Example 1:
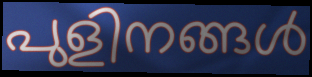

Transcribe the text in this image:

പുളിനങ്ങൾ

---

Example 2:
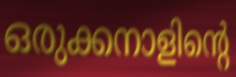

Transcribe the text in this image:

ഒരുക്കനാളിന്റെ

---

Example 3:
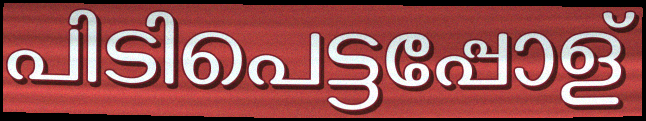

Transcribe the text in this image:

പിടിപെട്ടപ്പോള്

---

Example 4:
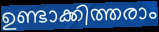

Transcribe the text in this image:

ഉണ്ടാക്കിത്തരാം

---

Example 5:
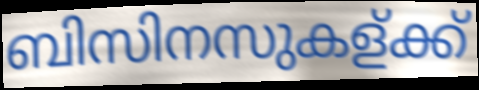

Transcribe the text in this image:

ബിസിനസുകള്ക്ക്